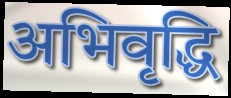
अभिवृद्धि